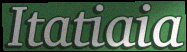
Itatiaia